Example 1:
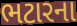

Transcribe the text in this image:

ભટારના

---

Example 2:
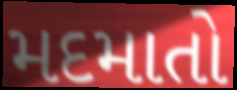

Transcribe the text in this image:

મદમાતો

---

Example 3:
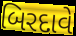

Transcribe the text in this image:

બિરદાવે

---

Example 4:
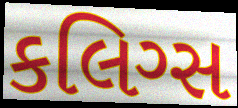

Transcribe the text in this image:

કલિગ્સ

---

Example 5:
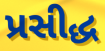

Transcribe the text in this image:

પ્રસીદ્ધ